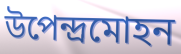
উপেন্দ্রমোহন